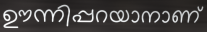
ഊന്നിപ്പറയാനാണ്